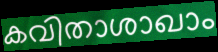
കവിതാശാഖാം